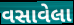
વસાવેલા